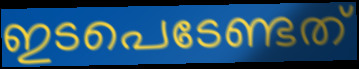
ഇടപെടേണ്ടത്